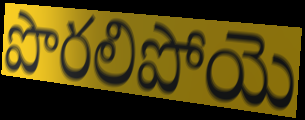
పొరలిపోయె